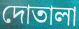
দোতালা